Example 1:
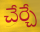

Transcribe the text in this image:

చేర్చే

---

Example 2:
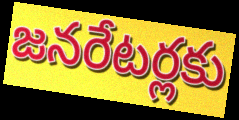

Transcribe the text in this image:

జనరేటర్లకు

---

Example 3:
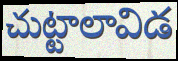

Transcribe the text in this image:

చుట్టాలావిడ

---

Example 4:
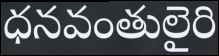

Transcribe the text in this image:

ధనవంతులైరి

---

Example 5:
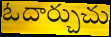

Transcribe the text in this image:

ఓదార్చుచు